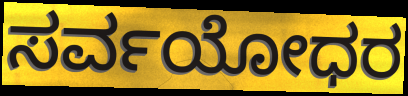
ಸರ್ವಯೋಧರ